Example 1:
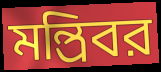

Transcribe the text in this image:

মন্ত্রিবর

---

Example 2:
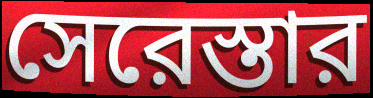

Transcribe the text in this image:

সেরেস্তার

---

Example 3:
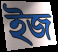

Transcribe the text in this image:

ইজ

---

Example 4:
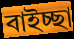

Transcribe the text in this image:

বাইচ্ছা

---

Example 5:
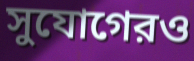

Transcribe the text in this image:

সুযোগেরও